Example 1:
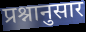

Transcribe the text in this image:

प्रश्नानुसार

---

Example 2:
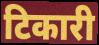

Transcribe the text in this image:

टिकारी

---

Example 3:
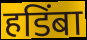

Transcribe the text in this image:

हडिंबा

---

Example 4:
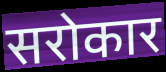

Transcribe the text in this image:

सरोकार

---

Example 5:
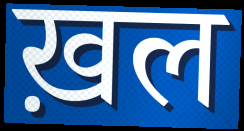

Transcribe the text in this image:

ख़ल